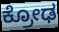
ಕ್ರೋಢ